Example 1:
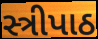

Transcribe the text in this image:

સ્ત્રીપાઠ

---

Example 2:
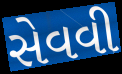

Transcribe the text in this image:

સેવવી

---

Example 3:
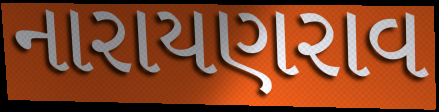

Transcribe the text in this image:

નારાયણરાવ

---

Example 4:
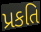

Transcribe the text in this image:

પ્રકતિ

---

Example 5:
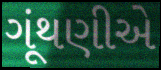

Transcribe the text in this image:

ગૂંથણીએ